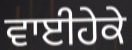
ਵਾਈਹੇਕੇ